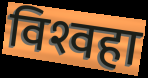
विश्वहा